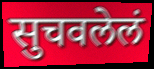
सुचवलेलं